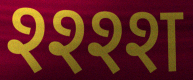
श्श्श्श